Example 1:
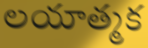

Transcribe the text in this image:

లయాత్మక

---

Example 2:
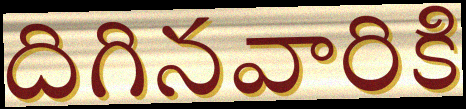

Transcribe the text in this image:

దిగినవారికి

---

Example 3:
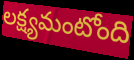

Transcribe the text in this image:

లక్ష్యమంటోంది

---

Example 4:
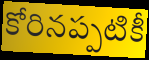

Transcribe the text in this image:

కోరినప్పటికీ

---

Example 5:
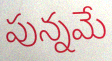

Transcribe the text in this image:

పున్నమే